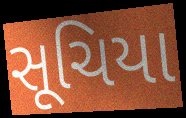
સૂચિયા